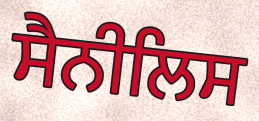
ਸੈਨੀਲਿਸ